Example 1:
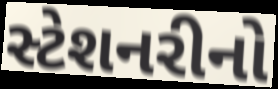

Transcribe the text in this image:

સ્ટેશનરીનો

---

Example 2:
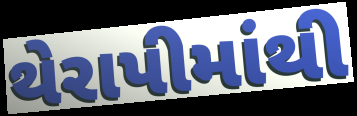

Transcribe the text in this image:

થેરાપીમાંથી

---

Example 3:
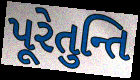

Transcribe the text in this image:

પૂરેતુન્તિ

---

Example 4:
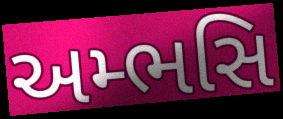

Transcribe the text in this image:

અમ્ભસિ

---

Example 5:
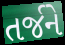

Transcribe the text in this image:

તર્જને